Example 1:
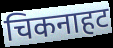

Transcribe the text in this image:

चिकनाहट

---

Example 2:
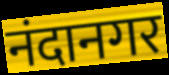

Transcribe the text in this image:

नंदानगर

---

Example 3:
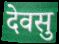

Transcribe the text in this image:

देवसु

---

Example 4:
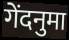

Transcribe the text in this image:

गेंदनुमा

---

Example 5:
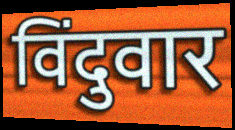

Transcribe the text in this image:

विंदुवार